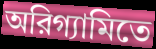
অরিগ্যামিতে